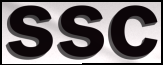
ssc